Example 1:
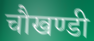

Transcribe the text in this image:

चौखण्डी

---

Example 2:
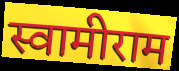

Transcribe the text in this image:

स्वामीराम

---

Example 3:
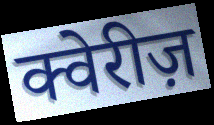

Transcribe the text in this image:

क्वेरीज़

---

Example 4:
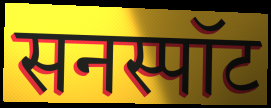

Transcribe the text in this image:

सनस्पॉट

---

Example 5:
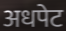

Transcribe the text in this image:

अधपेट